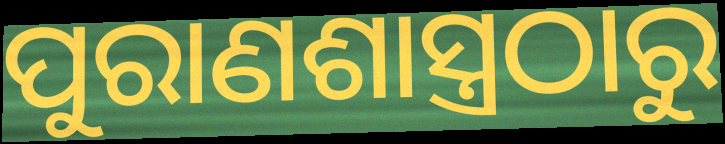
ପୁରାଣଶାସ୍ତ୍ରଠାରୁ